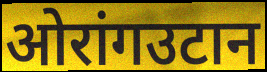
ओरांगउटान